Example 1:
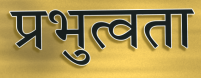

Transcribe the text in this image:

प्रभुत्वता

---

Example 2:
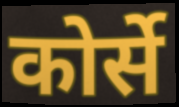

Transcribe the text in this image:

कोर्से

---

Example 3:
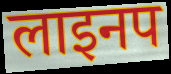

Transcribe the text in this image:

लाइनप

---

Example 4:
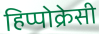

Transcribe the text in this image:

हिप्पोक्रेसी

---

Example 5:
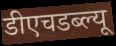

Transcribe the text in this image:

डीएचडब्ल्यू